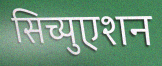
सिच्युएशन